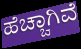
ಹೆಚ್ಚಾಗಿವೆ